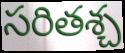
సరితశ్చ